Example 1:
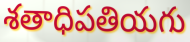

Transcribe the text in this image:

శతాధిపతియగు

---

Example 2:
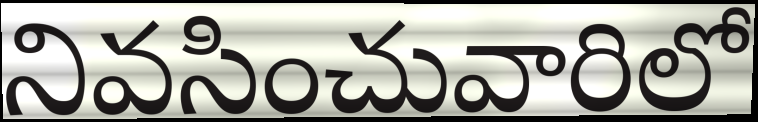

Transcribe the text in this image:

నివసించువారిలో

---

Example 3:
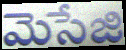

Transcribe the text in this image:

మెసేజి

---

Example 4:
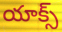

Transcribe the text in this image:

యాక్స్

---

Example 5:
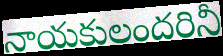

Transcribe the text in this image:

నాయకులందరినీ